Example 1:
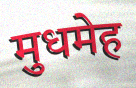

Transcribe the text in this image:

मुधमेह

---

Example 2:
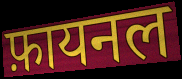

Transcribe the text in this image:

फ़ायनल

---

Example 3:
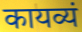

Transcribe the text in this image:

कायव्यं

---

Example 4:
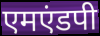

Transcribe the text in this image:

एमएंडपी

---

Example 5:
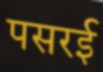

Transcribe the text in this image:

पसरई